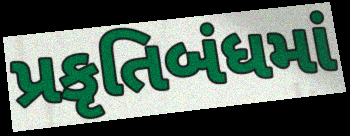
પ્રકૃતિબંધમાં